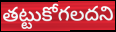
తట్టుకోగలదని